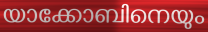
യാക്കോബിനെയും